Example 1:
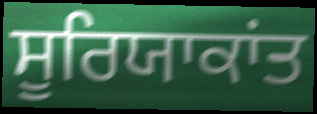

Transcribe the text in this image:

ਸੂਰਿਯਾਕਾਂਤ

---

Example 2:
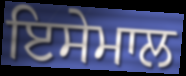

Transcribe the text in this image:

ਇਸੇਮਾਲ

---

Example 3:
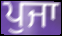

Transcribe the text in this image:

ਪੁਜਾ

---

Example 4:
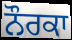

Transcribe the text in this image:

ਨੌਰਕਾ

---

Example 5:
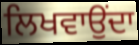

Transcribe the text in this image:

ਲਿਖਵਾਉਂਦਾ